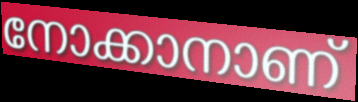
നോക്കാനാണ്